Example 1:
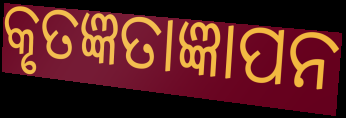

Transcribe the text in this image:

କୃତଜ୍ଞତାଜ୍ଞାପନ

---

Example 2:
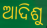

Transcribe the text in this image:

ଆଦିଶୁ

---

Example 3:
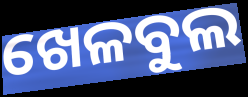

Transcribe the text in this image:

ଖେଳବୁଲ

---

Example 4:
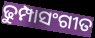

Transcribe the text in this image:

ଢୁମ୍ପାସଂଗୀତ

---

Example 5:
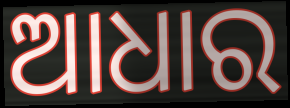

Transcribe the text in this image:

ଆଧାର